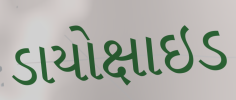
ડાયોક્ષાઇડ